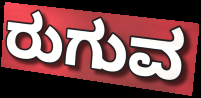
ರುಗುವ